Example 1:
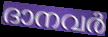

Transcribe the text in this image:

ദാനവർ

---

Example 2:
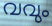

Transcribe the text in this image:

വവും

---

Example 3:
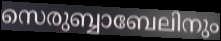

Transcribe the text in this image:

സെരുബ്ബാബേലിനും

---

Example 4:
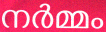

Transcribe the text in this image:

നർമ്മം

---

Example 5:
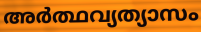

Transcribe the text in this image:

അർത്ഥവ്യത്യാസം